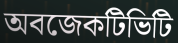
অবজেকটিভিটি